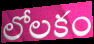
లోలకం